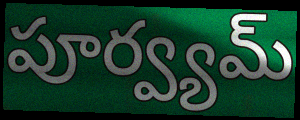
పూర్వ్యమ్